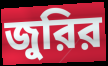
জুরির